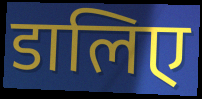
डालिए